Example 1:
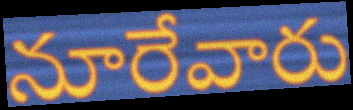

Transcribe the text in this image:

నూరేవారు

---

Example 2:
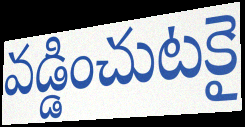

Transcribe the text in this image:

వడ్డించుటకై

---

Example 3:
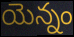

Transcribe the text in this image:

యెన్నం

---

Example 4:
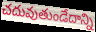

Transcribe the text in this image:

చదువుతుండేదాన్ని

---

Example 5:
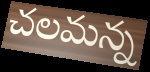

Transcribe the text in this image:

చలమన్న